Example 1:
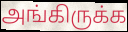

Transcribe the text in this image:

அங்கிருக்க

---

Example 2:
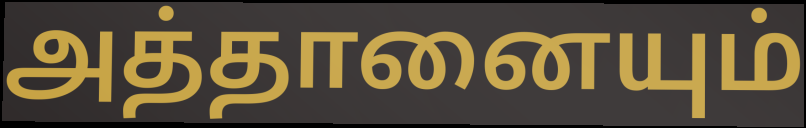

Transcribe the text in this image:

அத்தானையும்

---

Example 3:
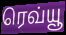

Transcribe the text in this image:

ரெவ்யூ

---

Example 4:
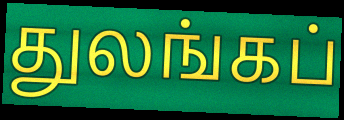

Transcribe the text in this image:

துலங்கப்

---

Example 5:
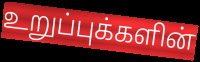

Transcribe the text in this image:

உறுப்புக்களின்